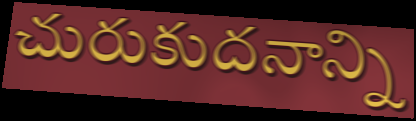
చురుకుదనాన్ని